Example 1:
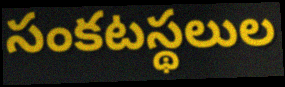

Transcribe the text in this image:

సంకటస్థలుల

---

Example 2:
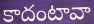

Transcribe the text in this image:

కాదంటావా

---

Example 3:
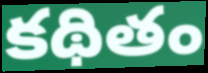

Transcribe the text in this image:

కథితం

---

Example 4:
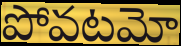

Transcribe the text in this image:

పోవటమో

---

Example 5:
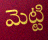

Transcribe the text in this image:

మెట్టి